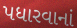
પધારવાનાં